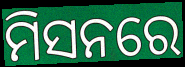
ମିସନରେ